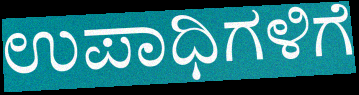
ಉಪಾಧಿಗಳಿಗೆ